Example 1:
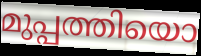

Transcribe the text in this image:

മുപ്പത്തിയൊ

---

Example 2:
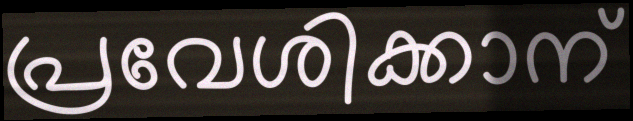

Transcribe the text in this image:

പ്രവേശിക്കാന്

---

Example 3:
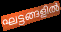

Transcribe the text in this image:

ഘട്ടങ്ങളിൽ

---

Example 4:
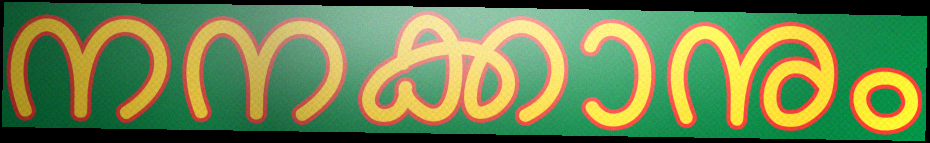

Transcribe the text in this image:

നനക്കാനും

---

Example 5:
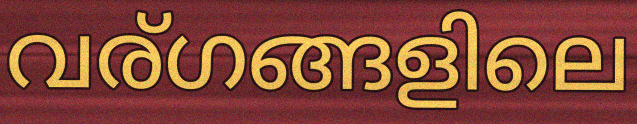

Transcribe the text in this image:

വര്ഗങ്ങളിലെ